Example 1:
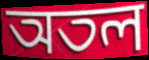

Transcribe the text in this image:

অতল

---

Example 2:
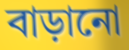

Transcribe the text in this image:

বাড়ানো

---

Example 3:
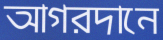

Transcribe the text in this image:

আগরদানে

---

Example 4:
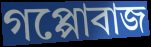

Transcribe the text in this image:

গপ্পোবাজ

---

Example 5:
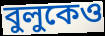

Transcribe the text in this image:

বুলুকেও